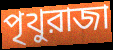
পৃথুরাজা